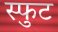
स्फुट